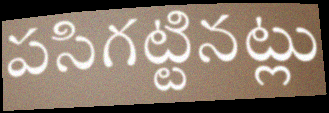
పసిగట్టినట్లు